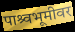
पाश्र्वभूमीवर